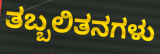
ತಬ್ಬಲಿತನಗಳು